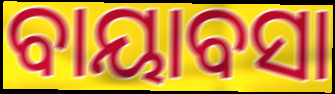
ବାୟାବସା